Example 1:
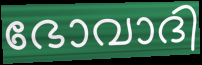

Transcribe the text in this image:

ഭോവാദി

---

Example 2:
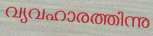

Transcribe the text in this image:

വ്യവഹാരത്തിന്നു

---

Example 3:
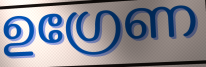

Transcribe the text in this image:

ഉഗ്രേണ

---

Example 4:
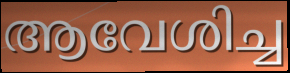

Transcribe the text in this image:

ആവേശിച്ച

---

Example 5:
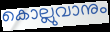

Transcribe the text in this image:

കൊല്ലുവാനും